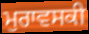
ਮੁਰਾਵਸਕੀ